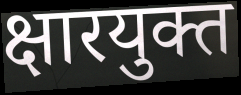
क्षारयुक्त